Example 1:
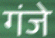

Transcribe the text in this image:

गंजे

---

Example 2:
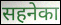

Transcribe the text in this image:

सहनेका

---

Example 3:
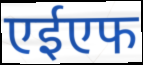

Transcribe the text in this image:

एईएफ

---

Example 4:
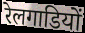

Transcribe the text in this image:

रेलगाडियों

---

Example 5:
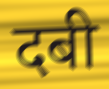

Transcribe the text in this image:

दबी